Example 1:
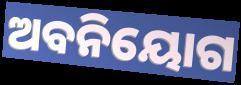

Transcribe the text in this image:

ଅବନିୟୋଗ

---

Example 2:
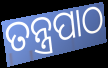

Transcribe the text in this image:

ତନ୍ତ୍ରପାଠ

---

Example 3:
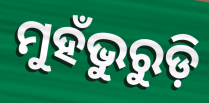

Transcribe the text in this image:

ମୁହଁଭୁରୁଡ଼ି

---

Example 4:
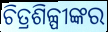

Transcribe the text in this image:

ଚିତ୍ରଶିଳ୍ପୀଙ୍କର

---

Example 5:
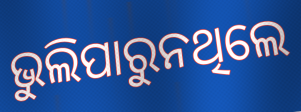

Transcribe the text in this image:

ଭୁଲିପାରୁନଥିଲେ